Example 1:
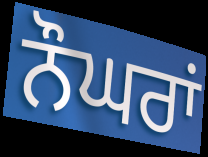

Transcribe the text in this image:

ਨੌਘਰਾਂ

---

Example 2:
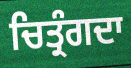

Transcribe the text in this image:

ਚਿਤ੍ਰੰਗਦਾ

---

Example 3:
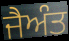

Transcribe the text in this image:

ਜੈਅੰਤ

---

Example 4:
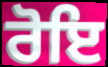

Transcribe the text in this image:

ਰੋਇ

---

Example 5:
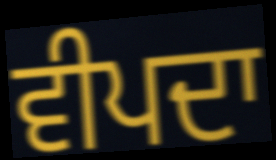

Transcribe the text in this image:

ਵੀਪਦਾ